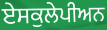
ਏਸਕੁਲੇਪੀਅਨ